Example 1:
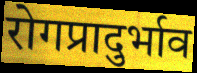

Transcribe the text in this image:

रोगप्रादुर्भाव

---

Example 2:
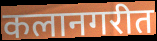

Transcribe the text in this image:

कलानगरीत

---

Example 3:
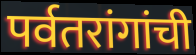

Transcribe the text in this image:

पर्वतरांगांची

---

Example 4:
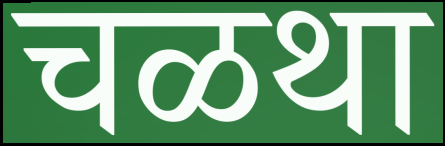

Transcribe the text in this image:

चळथा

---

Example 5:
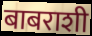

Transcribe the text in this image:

बाबराशी